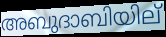
അബുദാബിയില്